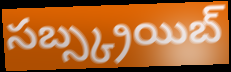
సబ్స్క్రయిబ్